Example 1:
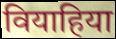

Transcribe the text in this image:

वियाहिया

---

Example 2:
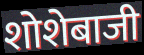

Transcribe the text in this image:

शोशेबाजी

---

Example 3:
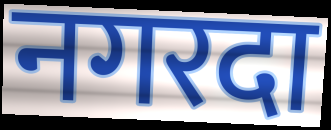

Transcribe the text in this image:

नगरदा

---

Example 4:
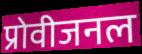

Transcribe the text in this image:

प्रोवीजनल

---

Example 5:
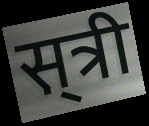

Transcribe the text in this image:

स़्त्री